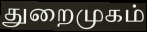
துறைமுகம்